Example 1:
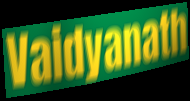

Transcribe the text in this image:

Vaidyanath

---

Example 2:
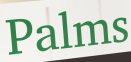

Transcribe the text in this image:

Palms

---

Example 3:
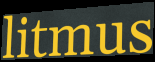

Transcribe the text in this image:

litmus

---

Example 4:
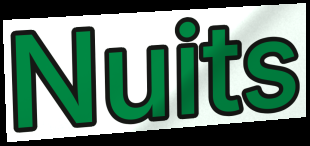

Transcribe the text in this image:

Nuits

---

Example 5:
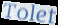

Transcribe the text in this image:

Tolet